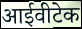
आईवीटेक